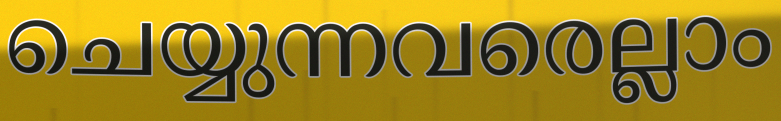
ചെയ്യുന്നവരെല്ലാം